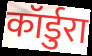
कॉर्डुरा